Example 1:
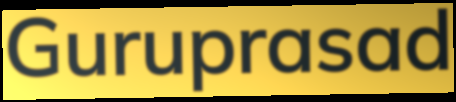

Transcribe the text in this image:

Guruprasad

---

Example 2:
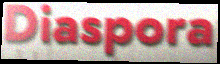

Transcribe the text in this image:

Diaspora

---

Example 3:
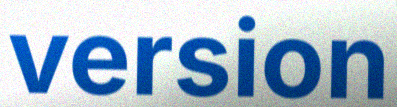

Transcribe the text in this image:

version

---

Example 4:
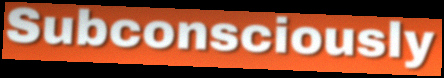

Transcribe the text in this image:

Subconsciously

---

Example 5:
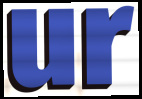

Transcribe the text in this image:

ur